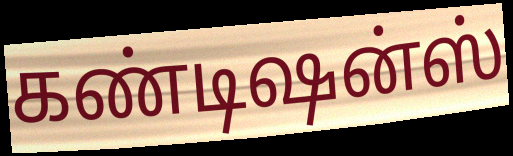
கண்டிஷன்ஸ்